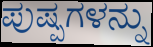
ಪುಷ್ಪಗಳನ್ನು